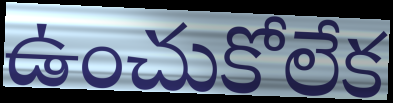
ఉంచుకోలేక